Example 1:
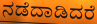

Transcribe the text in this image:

ನಡೆದಾಡಿದರೆ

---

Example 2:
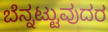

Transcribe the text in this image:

ಬೆನ್ನಟ್ಟುವುದರ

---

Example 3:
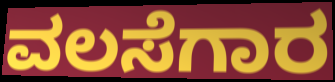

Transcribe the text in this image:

ವಲಸೆಗಾರ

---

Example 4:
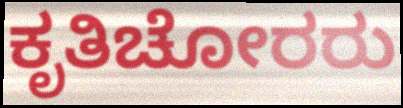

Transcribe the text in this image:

ಕೃತಿಚೋರರು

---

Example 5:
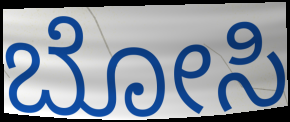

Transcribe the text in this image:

ಬೋಸಿ